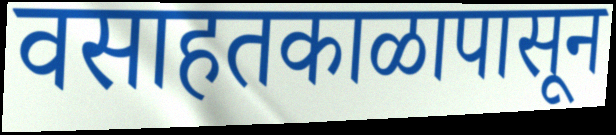
वसाहतकाळापासून